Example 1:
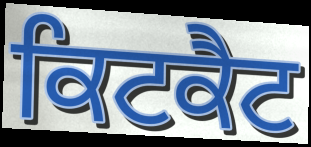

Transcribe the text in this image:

ਕਿਟਕੈਟ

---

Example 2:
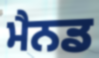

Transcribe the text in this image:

ਮੈਨਡ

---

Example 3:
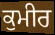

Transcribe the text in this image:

ਕੁਮੀਰ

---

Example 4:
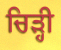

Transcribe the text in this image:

ਚਿੜ੍ਹੀ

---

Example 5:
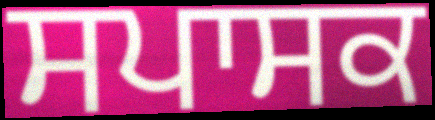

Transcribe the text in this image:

ਸਪਾਸਕ